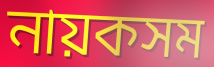
নায়কসম